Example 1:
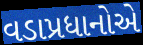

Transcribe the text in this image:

વડાપ્રધાનોએ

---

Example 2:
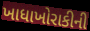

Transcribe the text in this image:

ખાધાખોરાકીની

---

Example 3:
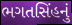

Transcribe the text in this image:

ભગતસિંહનું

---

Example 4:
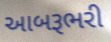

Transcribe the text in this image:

આબરૂભરી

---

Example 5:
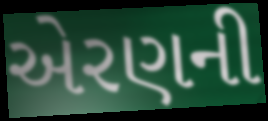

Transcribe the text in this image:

એરણની